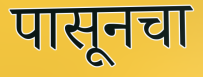
पासूनचा